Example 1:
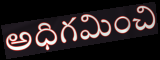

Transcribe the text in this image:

అధిగమించి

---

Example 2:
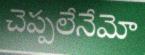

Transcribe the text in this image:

చెప్పలేనేమో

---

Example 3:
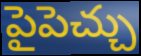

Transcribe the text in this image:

పైపెచ్చు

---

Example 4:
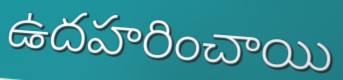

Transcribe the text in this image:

ఉదహరించాయి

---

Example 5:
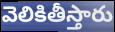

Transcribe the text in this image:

వెలికితీస్తారు